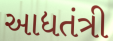
આદ્યતંત્રી